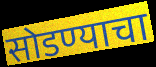
सोडण्याचा